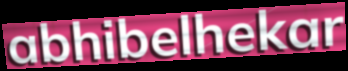
abhibelhekar